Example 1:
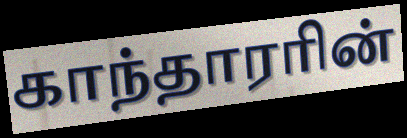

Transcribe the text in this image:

காந்தாரரின்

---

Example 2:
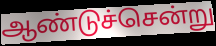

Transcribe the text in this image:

ஆண்டுச்சென்று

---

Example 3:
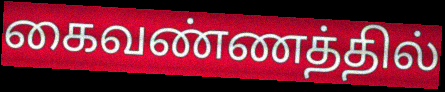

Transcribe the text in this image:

கைவண்ணத்தில்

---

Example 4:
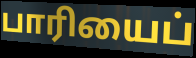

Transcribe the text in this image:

பாரியைப்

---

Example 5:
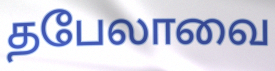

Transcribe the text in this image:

தபேலாவை